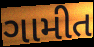
ગામીત